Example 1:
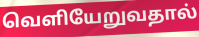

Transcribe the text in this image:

வெளியேறுவதால்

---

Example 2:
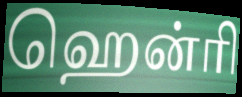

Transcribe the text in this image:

ஹென்ரி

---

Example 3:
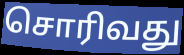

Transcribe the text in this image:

சொரிவது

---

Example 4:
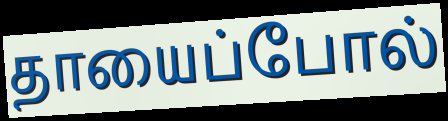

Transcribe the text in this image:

தாயைப்போல்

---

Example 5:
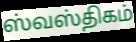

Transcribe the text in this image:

ஸ்வஸ்திகம்